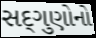
સદ્‌ગુણોનો